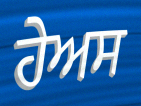
ਹੇਅਸ